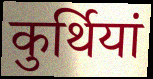
कुर्थियां